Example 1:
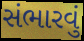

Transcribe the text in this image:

સંભારવું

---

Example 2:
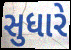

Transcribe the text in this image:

સુધારે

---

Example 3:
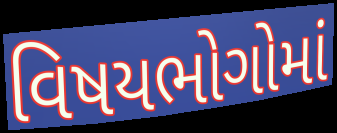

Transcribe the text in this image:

વિષયભોગોમાં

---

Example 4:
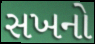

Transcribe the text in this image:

સખનો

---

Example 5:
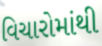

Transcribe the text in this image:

વિચારોમાંથી